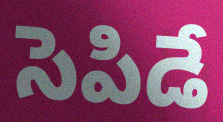
సెపిడే